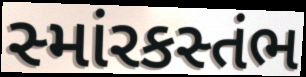
સ્માંરકસ્તંભ